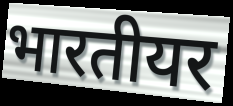
भारतीयर